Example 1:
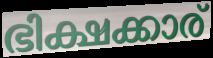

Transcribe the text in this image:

ഭിക്ഷക്കാര്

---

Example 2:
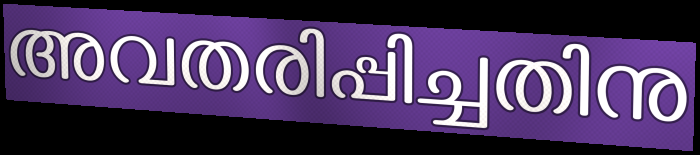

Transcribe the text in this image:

അവതരിപ്പിച്ചതിനു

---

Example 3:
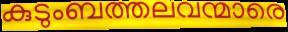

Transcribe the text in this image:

കുടുംബത്തലവന്മാരെ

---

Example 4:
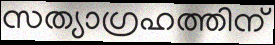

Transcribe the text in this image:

സത്യാഗ്രഹത്തിന്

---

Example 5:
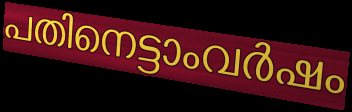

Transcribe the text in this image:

പതിനെട്ടാംവർഷം